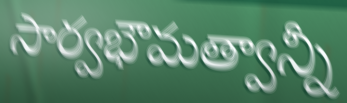
సార్వభౌమత్వాన్నీ